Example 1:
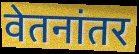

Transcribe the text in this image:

वेतनांतर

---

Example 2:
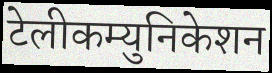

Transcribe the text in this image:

टेलीकम्युनिकेशन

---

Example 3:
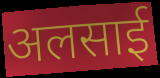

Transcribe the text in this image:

अलसाई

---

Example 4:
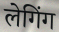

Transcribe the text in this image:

लेगिंग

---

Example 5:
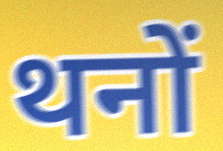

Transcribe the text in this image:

थनों